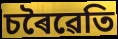
চৰৈৱেতি